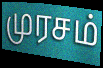
முரசம்